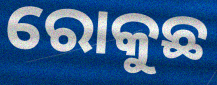
ରୋକୁଛ